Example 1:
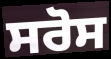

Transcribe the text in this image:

ਸਰੋਸ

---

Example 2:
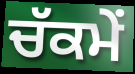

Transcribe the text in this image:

ਚੱਕਮੇਂ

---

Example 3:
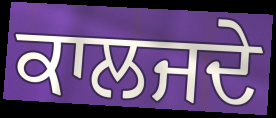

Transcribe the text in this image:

ਕਾਲਜਦੇ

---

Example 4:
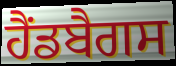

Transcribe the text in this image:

ਹੈਂਡਬੈਗਸ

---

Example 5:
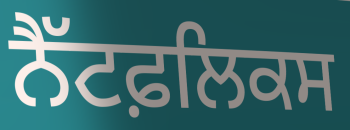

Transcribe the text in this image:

ਨੈੱਟਫ਼ਲਿਕਸ